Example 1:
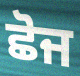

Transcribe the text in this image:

ਛੋਜ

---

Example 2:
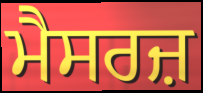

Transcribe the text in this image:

ਮੈਸਰਜ਼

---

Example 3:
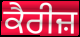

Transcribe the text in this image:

ਕੈਰੀਜ਼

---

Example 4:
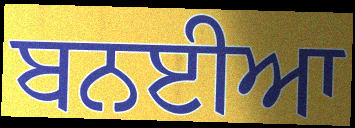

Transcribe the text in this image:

ਬਨਈਆ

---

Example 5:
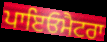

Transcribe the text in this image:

ਪਾਇਓਮੈਟਰਾ